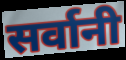
सर्वानी